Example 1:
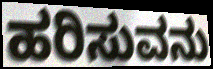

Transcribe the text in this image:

ಹರಿಸುವನು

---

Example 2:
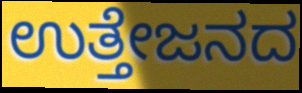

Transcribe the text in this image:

ಉತ್ತೇಜನದ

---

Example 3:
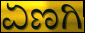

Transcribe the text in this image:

ಏಣಗಿ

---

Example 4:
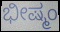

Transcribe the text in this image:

ಭೀಷ್ಮಂ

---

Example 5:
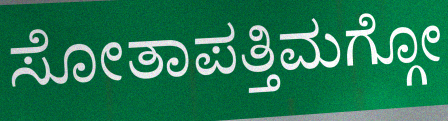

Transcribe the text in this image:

ಸೋತಾಪತ್ತಿಮಗ್ಗೋ